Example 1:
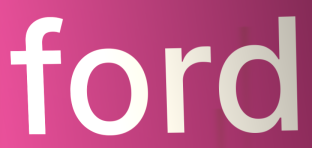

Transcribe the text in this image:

ford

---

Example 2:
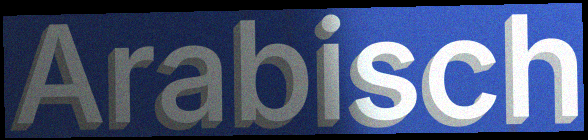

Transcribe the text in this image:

Arabisch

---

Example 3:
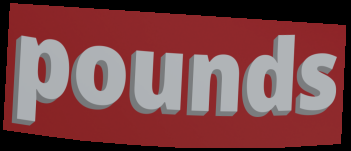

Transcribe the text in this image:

pounds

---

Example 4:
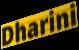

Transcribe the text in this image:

Dharini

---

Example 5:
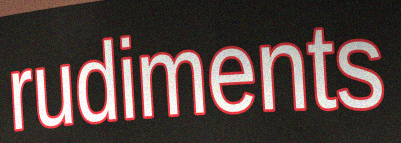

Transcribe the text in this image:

rudiments